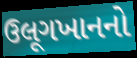
ઉલૂગખાનનો